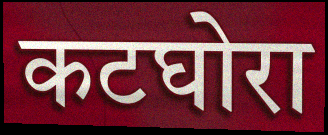
कटघोरा